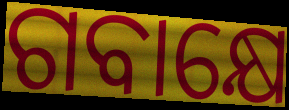
ଗବାକ୍ଷେ